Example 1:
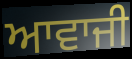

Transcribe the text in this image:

ਆਵਾਜੀ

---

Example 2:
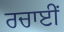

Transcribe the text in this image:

ਰਚਾਈਂ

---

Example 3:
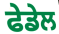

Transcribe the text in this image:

ਫੇਡੇਲ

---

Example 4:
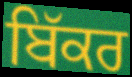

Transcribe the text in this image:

ਬਿੱਕਰ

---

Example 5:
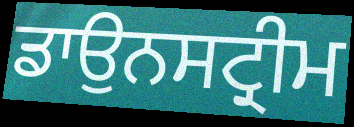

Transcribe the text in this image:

ਡਾਉਨਸਟ੍ਰੀਮ